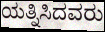
ಯತ್ನಿಸಿದವರು